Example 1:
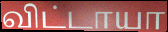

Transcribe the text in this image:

விட்டாயா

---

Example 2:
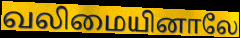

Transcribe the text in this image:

வலிமையினாலே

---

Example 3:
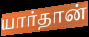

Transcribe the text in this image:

யார்தான்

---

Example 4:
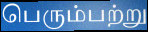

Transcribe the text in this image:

பெரும்பற்று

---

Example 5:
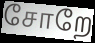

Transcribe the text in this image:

சோறே